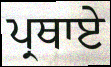
ਪ੍ਰਥਾਏ